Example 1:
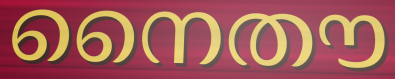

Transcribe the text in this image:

നൈതൗ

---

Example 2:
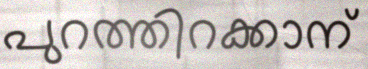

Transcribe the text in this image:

പുറത്തിറക്കാന്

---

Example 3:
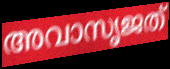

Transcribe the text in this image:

അവാസൃജത്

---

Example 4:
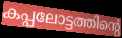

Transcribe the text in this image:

കപ്പലോട്ടത്തിന്റെ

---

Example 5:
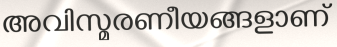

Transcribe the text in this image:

അവിസ്മരണീയങ്ങളാണ്